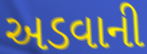
અડવાની